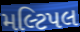
મલ્ટિપલ